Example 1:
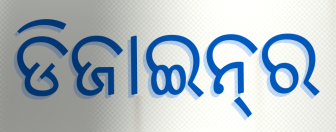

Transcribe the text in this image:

ଡିଜାଇନ୍‌ର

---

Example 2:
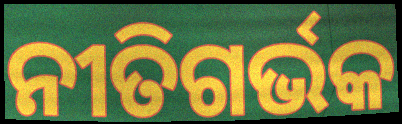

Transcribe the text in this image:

ନୀତିଗର୍ଭକ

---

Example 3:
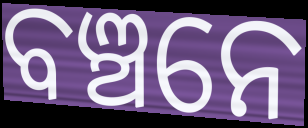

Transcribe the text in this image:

ବଞ୍ଚନେ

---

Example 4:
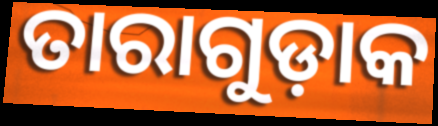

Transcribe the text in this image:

ତାରାଗୁଡ଼ାକ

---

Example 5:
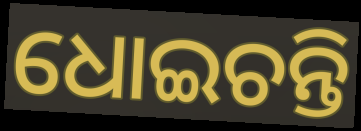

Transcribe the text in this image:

ଧୋଇଚନ୍ତି